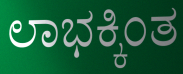
ಲಾಭಕ್ಕಿಂತ